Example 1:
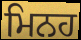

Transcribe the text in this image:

ਮਿਨਹ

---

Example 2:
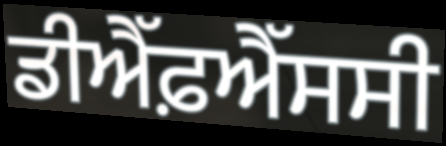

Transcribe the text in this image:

ਡੀਐੱਫ਼ਐੱਸਸੀ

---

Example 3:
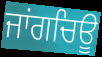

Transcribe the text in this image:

ਜਾਂਗਚਿਊ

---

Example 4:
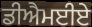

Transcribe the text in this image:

ਡੀਐਮਈਏ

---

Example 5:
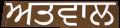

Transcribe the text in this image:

ਅਤਵਾਲ